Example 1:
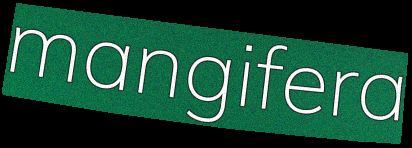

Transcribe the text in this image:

mangifera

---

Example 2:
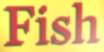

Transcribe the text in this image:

Fish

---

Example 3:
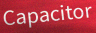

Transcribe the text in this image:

Capacitor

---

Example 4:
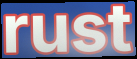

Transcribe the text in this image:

rust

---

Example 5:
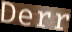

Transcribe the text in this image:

Derr